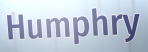
Humphry